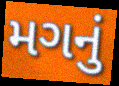
મગનું